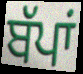
ਬੱਪਾਂ